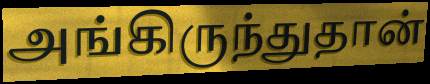
அங்கிருந்துதான்